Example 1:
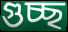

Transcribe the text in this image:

গুচ্ছ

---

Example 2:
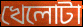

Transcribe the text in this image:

খেলোটা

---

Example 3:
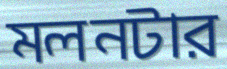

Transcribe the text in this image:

মলনটার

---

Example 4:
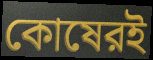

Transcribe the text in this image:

কোষেরই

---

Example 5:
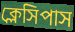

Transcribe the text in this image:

ক্লেসিপাস